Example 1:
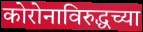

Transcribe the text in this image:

कोरोनाविरुद्धच्या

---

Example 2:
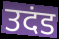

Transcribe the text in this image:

उदंड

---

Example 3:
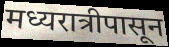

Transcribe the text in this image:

मध्यरात्रीपासून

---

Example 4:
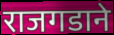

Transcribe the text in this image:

राजगडाने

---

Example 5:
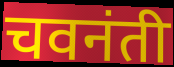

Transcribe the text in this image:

चवनंती